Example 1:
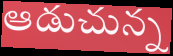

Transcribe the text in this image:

ఆడుచున్న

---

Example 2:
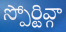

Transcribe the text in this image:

స్పోర్టివ్గా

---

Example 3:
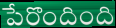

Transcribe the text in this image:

పేరొందింది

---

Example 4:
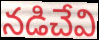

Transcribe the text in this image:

నడిచేవి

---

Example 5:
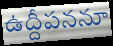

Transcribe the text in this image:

ఉద్దీపననూ